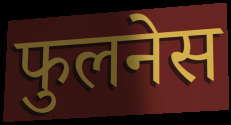
फुलनेस